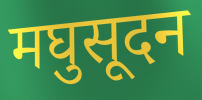
मघुसूदन